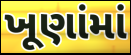
ખૂણાંમાં